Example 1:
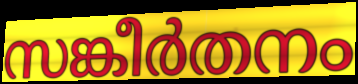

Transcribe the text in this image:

സങ്കീർതനം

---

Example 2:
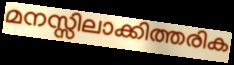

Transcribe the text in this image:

മനസ്സിലാക്കിത്തരിക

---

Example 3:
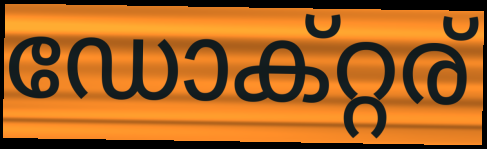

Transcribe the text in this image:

ഡോക്റ്റര്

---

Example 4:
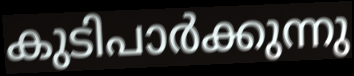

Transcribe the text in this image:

കുടിപാർക്കുന്നു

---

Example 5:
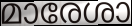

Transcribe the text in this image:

മാരേശാ